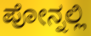
ಪೋನ್ನಲ್ಲಿ